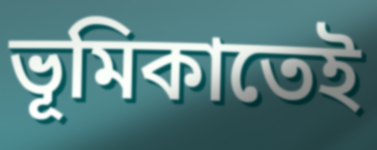
ভূমিকাতেই